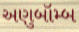
અણુબૉમ્બ